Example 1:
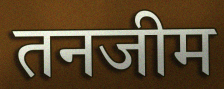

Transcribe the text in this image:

तनजीम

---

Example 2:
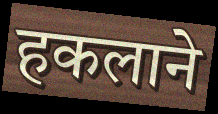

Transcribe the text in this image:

हकलाने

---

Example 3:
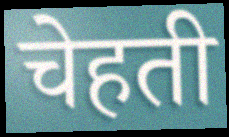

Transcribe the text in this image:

चेहती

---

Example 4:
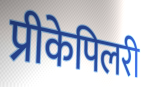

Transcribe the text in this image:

प्रीकेपिलरी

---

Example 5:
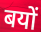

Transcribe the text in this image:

बयों